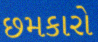
છમકારો